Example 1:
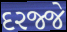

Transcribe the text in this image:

દરજ્જે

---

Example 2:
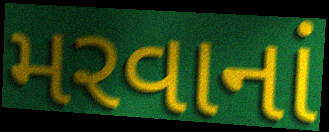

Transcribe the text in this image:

મરવાનાં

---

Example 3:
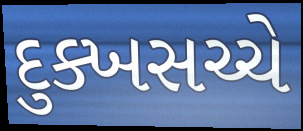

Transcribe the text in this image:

દુક્ખસચ્ચે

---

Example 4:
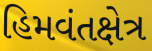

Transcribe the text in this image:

હિમવંતક્ષેત્ર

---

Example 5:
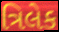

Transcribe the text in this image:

ત્રિલેક